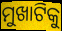
ମୁଖାଟିକୁ